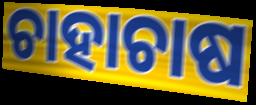
ଚାହାଚାଷ